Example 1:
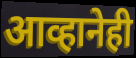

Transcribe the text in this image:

आव्हानेही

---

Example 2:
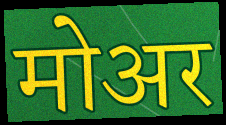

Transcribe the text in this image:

मोअर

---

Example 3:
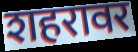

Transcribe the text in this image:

शहरावर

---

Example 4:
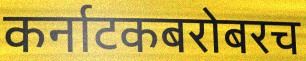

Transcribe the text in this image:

कर्नाटकबरोबरच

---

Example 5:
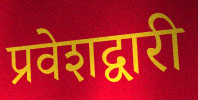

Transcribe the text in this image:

प्रवेशद्वारी